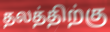
தலத்திற்கு